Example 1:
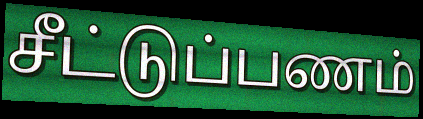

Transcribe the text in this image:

சீட்டுப்பணம்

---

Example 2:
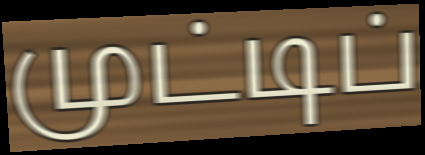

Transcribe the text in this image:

முட்டிப்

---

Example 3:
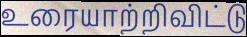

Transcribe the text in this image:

உரையாற்றிவிட்டு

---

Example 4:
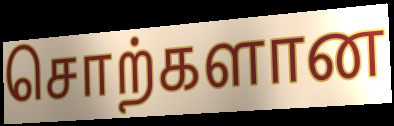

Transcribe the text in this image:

சொற்களான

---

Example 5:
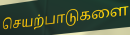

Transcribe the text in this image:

செயற்பாடுகளை